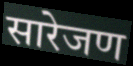
सारेजण